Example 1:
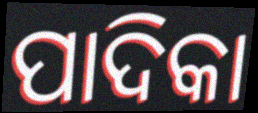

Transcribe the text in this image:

ପାଦିକା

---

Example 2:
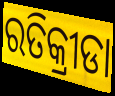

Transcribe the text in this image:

ରତିକ୍ରୀଡା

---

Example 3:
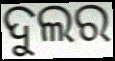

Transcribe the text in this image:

ଦୁଲର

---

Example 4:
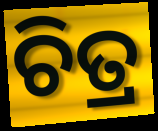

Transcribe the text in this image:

ଚିତ୍ର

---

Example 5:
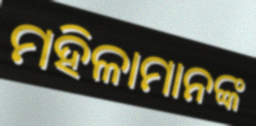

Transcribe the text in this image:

ମହିଳାମାନଙ୍କ